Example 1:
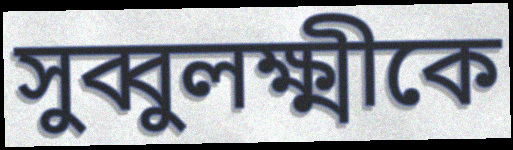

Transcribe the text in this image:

সুব্বুলক্ষ্মীকে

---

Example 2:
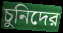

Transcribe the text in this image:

চুনিদের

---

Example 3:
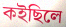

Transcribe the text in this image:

কইছিলে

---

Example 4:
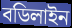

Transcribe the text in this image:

বডিলাইন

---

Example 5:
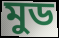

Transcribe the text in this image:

মুড